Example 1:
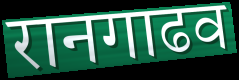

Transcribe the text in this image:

रानगाढव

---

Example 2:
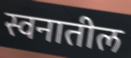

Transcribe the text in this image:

स्वनातील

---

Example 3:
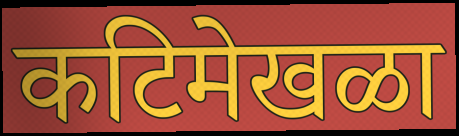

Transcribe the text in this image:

कटिमेखळा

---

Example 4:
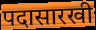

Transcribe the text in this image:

पदासारखी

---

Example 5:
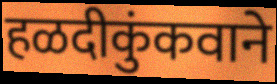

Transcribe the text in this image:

हळदीकुंकवाने